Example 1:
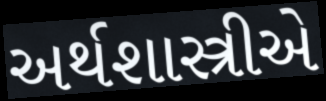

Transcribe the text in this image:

અર્થશાસ્ત્રીએ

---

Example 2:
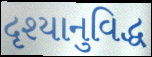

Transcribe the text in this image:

દૃશ્યાનુવિદ્ધ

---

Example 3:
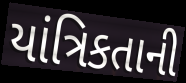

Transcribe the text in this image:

યાંત્રિકતાની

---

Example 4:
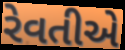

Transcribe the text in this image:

રેવતીએ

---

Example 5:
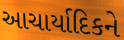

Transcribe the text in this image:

આચાર્યાદિકને